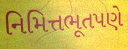
નિમિત્તભૂતપણે